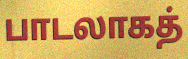
பாடலாகத்